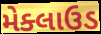
મેક્લાઉડ